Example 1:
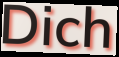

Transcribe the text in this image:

Dich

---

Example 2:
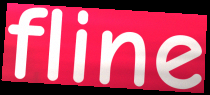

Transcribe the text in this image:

fline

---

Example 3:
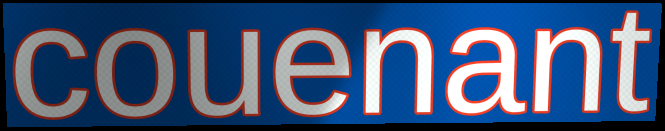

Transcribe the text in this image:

couenant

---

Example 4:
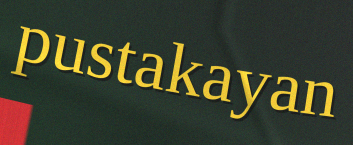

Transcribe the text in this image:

pustakayan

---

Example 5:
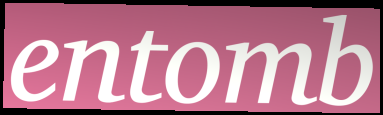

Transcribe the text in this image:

entomb